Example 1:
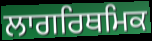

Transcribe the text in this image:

ਲਾਗਰਿਥਮਿਕ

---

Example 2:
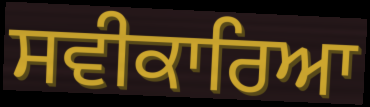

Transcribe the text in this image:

ਸਵੀਕਾਰਿਆ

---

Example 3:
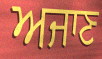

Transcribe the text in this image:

ਅਜਾਣ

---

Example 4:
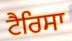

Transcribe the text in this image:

ਟੈਰਿਸਾ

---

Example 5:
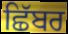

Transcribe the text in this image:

ਛਿੱਬਰ